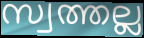
സ്വത്തല്ല